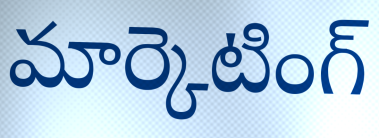
మార్కెటింగ్